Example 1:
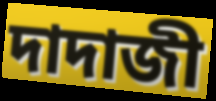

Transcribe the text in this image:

দাদাজী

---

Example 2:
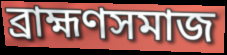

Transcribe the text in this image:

ব্রাহ্মণসমাজ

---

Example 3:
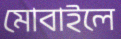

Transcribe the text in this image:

মোবাইলে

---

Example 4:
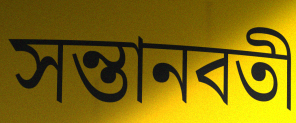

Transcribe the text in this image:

সন্তানবতী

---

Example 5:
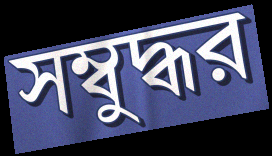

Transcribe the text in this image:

সম্বুদ্ধর